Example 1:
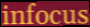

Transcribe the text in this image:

infocus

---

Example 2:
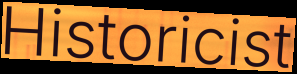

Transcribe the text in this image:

Historicist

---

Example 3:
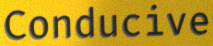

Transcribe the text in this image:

Conducive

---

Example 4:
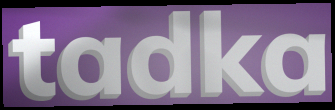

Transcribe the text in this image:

tadka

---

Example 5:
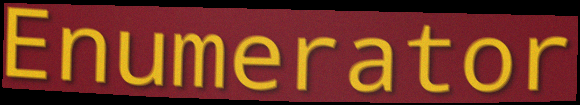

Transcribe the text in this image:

Enumerator